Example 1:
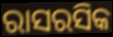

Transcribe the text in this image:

ରାସରସିକ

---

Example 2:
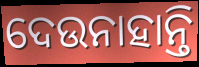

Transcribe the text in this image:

ଦେଉନାହାନ୍ତି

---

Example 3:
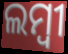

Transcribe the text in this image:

ଲମ୍ବୀ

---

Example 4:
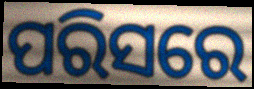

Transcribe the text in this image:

ପରିସରେ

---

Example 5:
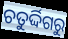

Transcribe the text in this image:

ଚତୁର୍ଦ୍ଦିଗରୁ